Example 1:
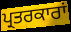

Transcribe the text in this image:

ਪ੍ਰਤਰਕਾਰਾਂ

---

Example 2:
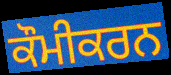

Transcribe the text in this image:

ਕੌਮੀਕਰਨ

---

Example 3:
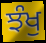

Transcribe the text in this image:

ਝੰਖੁ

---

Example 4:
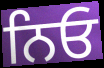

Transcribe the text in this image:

ਨਿਓ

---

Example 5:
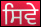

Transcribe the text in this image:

ਸਿਵੇ